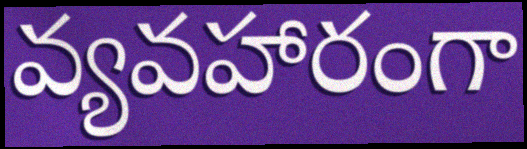
వ్యవహారంగా